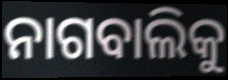
ନାଗବାଲିକୁ